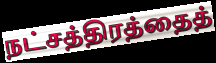
நட்சத்திரத்தைத்